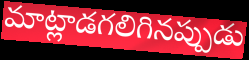
మాట్లాడగలిగినప్పుడు